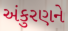
અંકુરણને